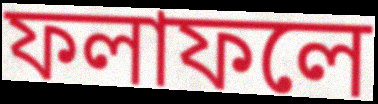
ফলাফলে